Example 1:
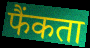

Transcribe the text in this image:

फैंकता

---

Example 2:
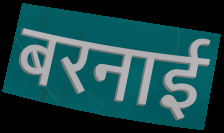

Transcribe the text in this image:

बरनाई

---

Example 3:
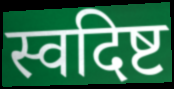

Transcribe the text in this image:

स्वदिष्ट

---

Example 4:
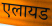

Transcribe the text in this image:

एलायड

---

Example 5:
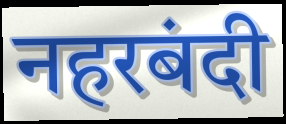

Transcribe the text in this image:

नहरबंदी